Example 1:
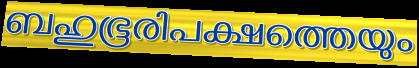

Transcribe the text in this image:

ബഹുഭൂരിപക്ഷത്തെയും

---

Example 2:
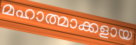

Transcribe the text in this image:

മഹാത്മാക്കളായ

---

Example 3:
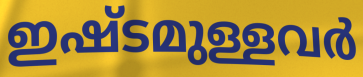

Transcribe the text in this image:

ഇഷ്ടമുള്ളവർ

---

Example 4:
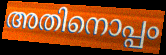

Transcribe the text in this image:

അതിനൊപ്പം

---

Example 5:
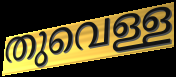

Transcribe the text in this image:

തുവെള്ള